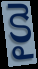
కై